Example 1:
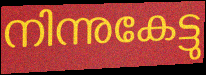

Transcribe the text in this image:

നിന്നുകേട്ടു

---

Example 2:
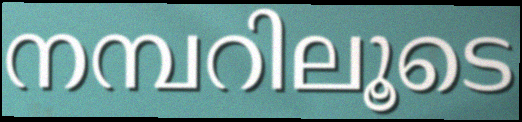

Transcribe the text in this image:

നമ്പറിലൂടെ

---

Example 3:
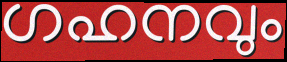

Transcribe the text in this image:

ഗഹനവും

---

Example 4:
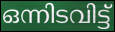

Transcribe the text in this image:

ഒന്നിടവിട്ട്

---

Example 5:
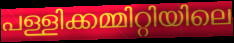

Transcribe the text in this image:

പള്ളിക്കമ്മിറ്റിയിലെ